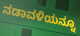
ನಡಾವಳಿಯನ್ನೂ